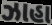
ઝાહા